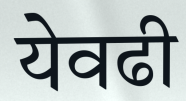
येवढी